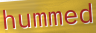
hummed